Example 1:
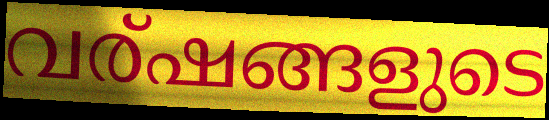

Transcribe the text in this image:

വര്ഷങ്ങളുടെ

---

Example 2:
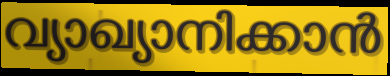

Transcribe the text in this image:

വ്യാഖ്യാനിക്കാൻ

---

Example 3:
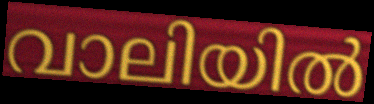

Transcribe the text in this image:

വാലിയിൽ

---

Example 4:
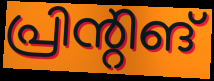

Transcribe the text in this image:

പ്രിന്റിങ്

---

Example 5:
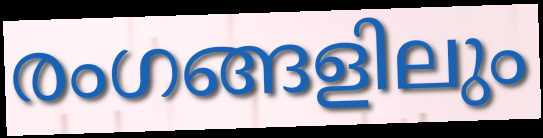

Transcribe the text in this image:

രംഗങ്ങളിലും